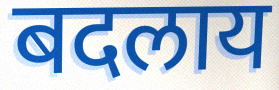
बदलाय